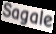
Sagale